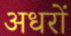
अधरों